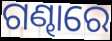
ଗଣ୍ଢାରେ